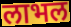
लाभल